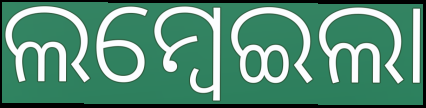
ଲମ୍ବେଇଲା